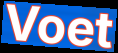
Voet